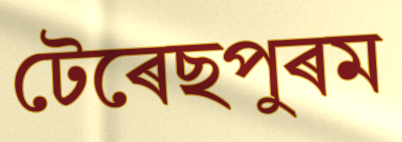
টেৰেছপুৰম